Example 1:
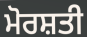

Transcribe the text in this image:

ਮੋਰਸ਼ਤੀ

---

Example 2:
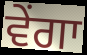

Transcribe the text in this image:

ਵੇਂਗਾ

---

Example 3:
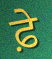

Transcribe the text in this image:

ਫ਼ੇ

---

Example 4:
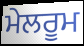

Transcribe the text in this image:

ਮੇਲਰੂਮ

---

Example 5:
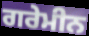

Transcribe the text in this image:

ਗਰੇਮੀਨ